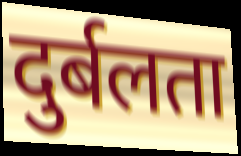
दुर्बलता